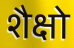
शैक्षो